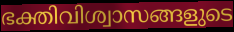
ഭക്തിവിശ്വാസങ്ങളുടെ